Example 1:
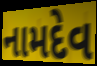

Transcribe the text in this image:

નામદેવ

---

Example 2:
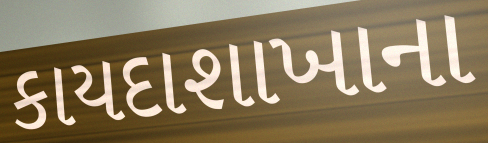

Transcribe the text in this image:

કાયદાશાખાના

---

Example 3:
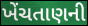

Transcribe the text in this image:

ખેંચતાણની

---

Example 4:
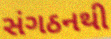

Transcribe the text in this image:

સંગઠનથી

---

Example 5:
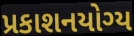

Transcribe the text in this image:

પ્રકાશનયોગ્ય